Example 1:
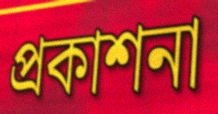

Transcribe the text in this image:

প্ৰকাশনা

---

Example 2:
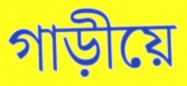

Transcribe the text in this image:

গাড়ীয়ে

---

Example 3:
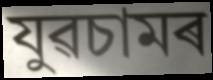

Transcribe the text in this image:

যুৱচামৰ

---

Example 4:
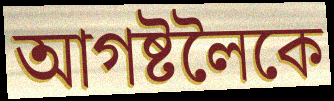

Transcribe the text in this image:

আগষ্টলৈকে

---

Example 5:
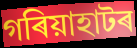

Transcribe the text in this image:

গৰিয়াহাটৰ